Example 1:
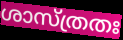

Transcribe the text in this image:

ശാസ്ത്രതഃ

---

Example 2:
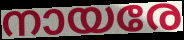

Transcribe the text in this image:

നായരേ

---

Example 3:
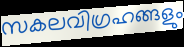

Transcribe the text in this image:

സകലവിഗ്രഹങ്ങളും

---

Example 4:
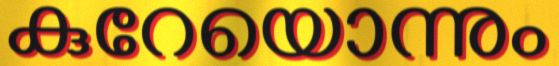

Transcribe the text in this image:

കുറേയൊന്നും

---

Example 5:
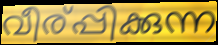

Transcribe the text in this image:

വീര്പ്പിക്കുന്ന